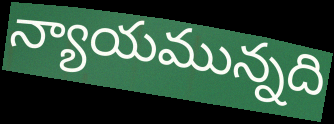
న్యాయమున్నది